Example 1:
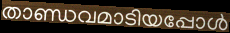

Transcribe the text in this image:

താണ്ഡവമാടിയപ്പോൾ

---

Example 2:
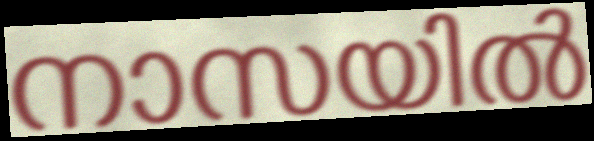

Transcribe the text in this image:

നാസയിൽ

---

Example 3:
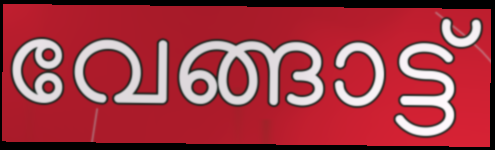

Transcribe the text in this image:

വേങ്ങാട്ട്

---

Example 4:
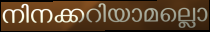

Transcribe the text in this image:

നിനക്കറിയാമല്ലൊ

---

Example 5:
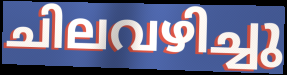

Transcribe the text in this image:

ചിലവഴിച്ചു